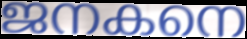
ജനകനെ